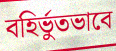
বহির্ভুতভাবে